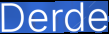
Derde